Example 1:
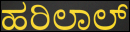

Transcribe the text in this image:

ಹರಿಲಾಲ್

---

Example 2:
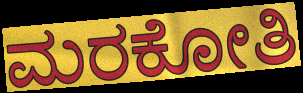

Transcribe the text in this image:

ಮರಕೋತಿ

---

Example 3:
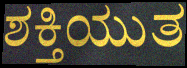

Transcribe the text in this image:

ಶಕ್ತಿಯುತ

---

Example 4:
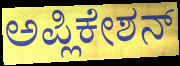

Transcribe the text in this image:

ಅಪ್ಲಿಕೇಶನ್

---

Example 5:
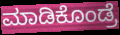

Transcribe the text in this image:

ಮಾಡಿಕೊಂಡ್ರೆ